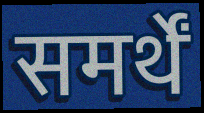
समर्थें